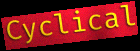
Cyclical